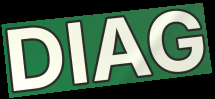
DIAG